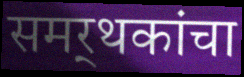
समर्थकांचा